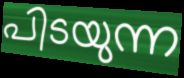
പിടയുന്ന